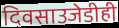
दिवसाउजेडीही